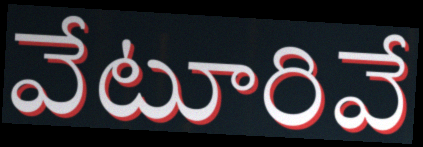
వేటూరివే